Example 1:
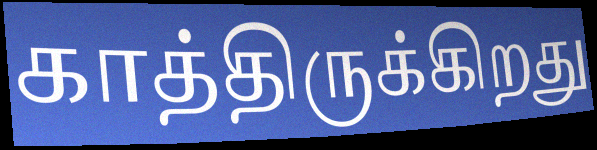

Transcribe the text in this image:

காத்திருக்கிறது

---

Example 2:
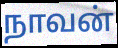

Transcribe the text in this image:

நாவன்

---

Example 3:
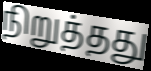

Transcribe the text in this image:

நிறுத்தது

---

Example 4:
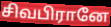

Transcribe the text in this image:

சிவபிரானே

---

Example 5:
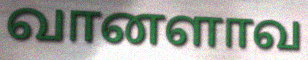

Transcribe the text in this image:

வானளாவ